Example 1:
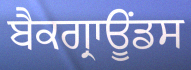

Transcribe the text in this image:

ਬੈਕਗ੍ਰਾਊਂਡਸ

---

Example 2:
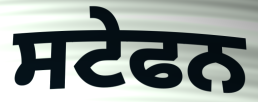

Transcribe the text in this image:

ਸਟੇਫਨ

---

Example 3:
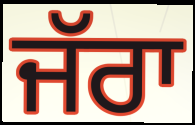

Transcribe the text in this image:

ਜੱਰਾ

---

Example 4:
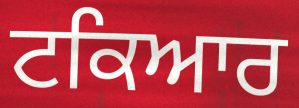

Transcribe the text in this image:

ਟਕਿਆਰ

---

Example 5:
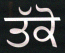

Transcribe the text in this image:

ਤੱਕੋ